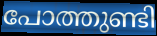
പോത്തുണ്ടി